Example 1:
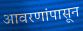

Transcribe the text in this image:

आवरणांपासून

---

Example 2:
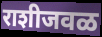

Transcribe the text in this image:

राशीजवळ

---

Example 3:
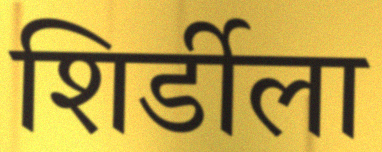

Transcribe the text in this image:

शिर्डीला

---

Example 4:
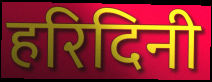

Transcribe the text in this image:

हरिदिनी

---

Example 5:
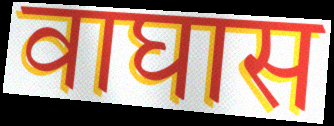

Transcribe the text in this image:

वाघास